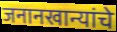
जनानखान्यांचे